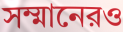
সম্মানেরও